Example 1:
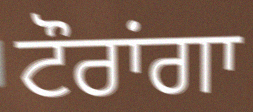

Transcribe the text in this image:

ਟੌਰਾਂਗਾ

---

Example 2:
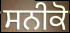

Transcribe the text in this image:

ਸਨੀਕੋ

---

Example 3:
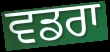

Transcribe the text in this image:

ਵਡਰਾ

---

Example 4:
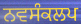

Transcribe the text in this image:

ਨਵਸੰਕਲਪ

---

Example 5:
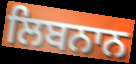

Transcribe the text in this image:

ਲਿਬਨਾਨ